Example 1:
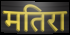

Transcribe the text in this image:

मतिरा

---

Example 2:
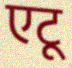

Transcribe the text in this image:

एटू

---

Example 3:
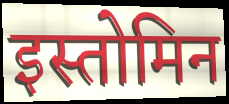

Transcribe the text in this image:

इस्तोमिन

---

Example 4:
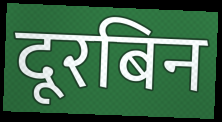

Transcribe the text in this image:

दूरबिन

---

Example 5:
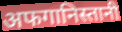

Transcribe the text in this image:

अफगानिस्तानी